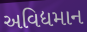
અવિદ્યમાન